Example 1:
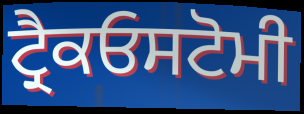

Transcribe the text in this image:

ਟ੍ਰੈਕਓਸਟੋਮੀ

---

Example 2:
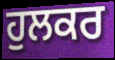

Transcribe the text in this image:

ਹੁਲਕਰ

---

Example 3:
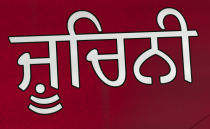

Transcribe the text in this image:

ਜ਼ੂਚਿਨੀ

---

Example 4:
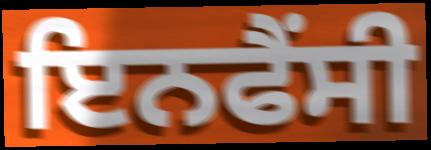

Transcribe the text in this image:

ਇਨਫੈਂਸੀ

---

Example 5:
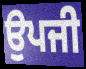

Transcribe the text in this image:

ਉਪਜੀ